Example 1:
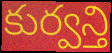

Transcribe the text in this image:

కుర్వన్తి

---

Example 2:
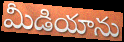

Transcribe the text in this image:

మీడియాను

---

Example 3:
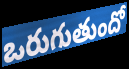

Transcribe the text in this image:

ఒరుగుతుందో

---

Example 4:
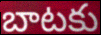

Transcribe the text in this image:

బాటకు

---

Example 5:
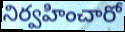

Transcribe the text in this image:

నిర్వహించారో